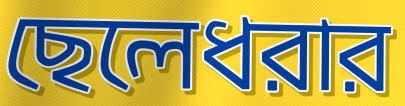
ছেলেধরার